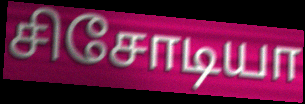
சிசோடியா